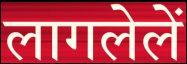
लागलेलें